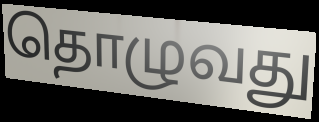
தொழுவது